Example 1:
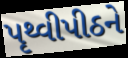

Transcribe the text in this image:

પૃથ્વીપીઠને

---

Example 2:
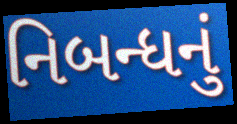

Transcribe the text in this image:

નિબન્ધનું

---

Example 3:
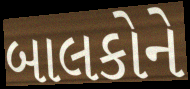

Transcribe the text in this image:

બાલકોને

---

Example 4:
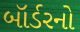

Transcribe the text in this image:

બૉર્ડરનો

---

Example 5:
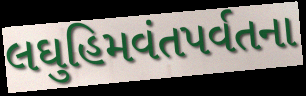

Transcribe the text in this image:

લઘુહિમવંતપર્વતના